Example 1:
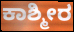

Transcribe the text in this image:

ಕಾಶ್ಮೀರ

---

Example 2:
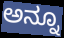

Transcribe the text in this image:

ಅನ್ನೂ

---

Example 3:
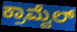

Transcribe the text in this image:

ಕ್ರಾಮ್ವೆಲ್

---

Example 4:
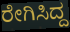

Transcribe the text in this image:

ರೇಗಿಸಿದ್ದ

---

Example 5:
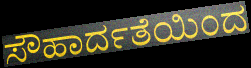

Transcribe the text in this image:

ಸೌಹಾರ್ದತೆಯಿಂದ